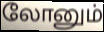
லோனும்